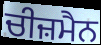
ਚੀਜ਼ਮੈਨ